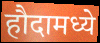
हौदामध्ये